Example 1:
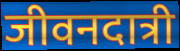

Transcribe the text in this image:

जीवनदात्री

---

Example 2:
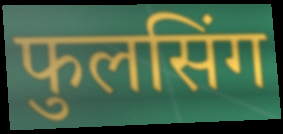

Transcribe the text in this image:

फुलसिंग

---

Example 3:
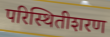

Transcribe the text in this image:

परिस्थितीशरण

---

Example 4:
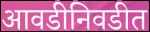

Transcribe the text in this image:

आवडीनिवडीत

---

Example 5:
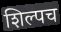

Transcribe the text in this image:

शिल्पच